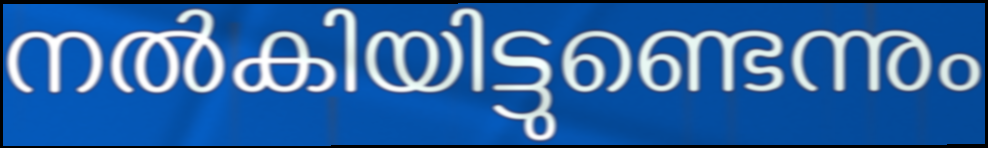
നൽകിയിട്ടുണ്ടെന്നും